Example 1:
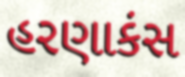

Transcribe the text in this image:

હરણાકંસ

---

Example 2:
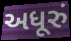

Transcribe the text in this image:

અધૂરું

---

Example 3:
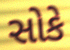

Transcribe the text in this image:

સોકે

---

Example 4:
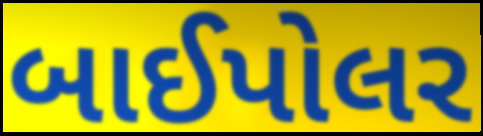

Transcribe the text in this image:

બાઈપોલર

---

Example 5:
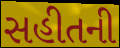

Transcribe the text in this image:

સહીતની